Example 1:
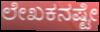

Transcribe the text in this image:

ಲೇಖಕನಷ್ಟೇ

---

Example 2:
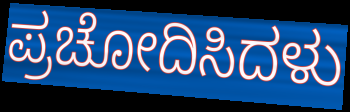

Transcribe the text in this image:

ಪ್ರಚೋದಿಸಿದಳು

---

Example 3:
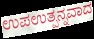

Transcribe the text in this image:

ಉಪಉತ್ಪನ್ನವಾದ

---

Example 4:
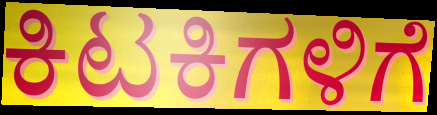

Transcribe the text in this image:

ಕಿಟಕಿಗಳಿಗೆ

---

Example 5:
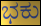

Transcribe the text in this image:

ಭಕು